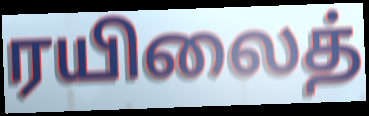
ரயிலைத்